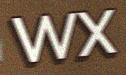
WX